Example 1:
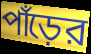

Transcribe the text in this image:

পাঁড়ের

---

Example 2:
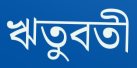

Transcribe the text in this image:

ঋতুবতী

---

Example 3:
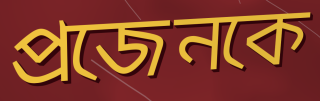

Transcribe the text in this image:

প্রজেনকে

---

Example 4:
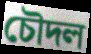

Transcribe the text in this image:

চৌদল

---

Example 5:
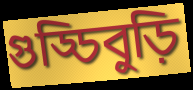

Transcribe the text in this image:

গুড্ডিবুড়ি